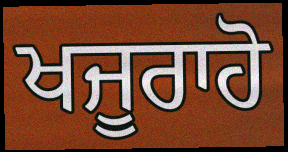
ਖਜੂਰਾਹੋ